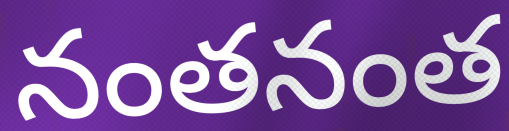
నంతనంత